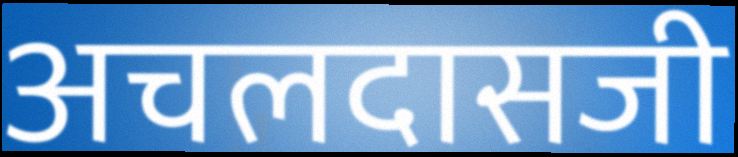
अचलदासजी